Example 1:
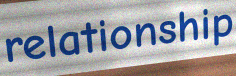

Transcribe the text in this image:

relationship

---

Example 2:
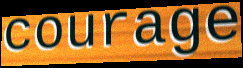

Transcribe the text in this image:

courage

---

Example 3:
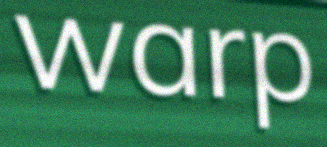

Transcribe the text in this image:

warp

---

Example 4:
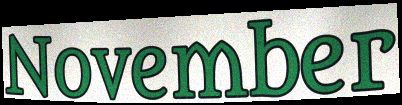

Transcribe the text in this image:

November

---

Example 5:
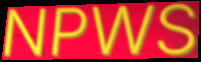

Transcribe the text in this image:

NPWS